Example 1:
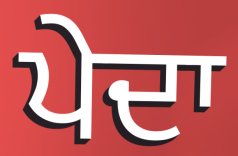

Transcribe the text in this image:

ਪੇਦਾ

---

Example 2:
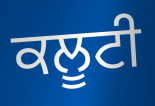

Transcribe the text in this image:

ਕਲੂਟੀ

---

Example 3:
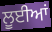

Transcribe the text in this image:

ਲੂਈਆਂ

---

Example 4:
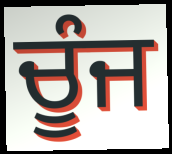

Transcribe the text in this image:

ਚੂੰਜ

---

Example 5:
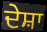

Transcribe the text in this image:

ਦੇਸ਼ਾ